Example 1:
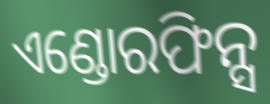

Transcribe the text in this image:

ଏଣ୍ଡୋରଫିନ୍ସ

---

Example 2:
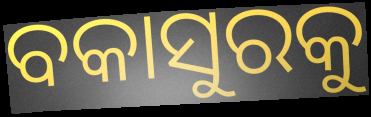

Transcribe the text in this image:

ବକାସୁରକୁ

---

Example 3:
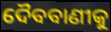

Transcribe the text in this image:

ଦୈବବାଣୀକୁ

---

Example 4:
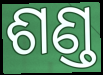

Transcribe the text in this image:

ଶଣ୍ଡ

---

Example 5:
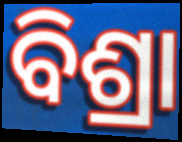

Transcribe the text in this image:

ବିଶ୍ରା